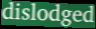
dislodged